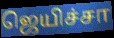
ஜெயிச்சா